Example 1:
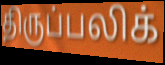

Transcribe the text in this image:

திருப்பலிக்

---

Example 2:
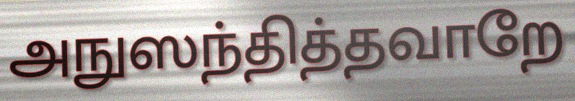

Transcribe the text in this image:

அநுஸந்தித்தவாறே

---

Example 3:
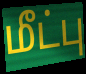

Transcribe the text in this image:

மீட்பு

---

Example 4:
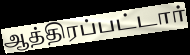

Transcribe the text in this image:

ஆத்திரப்பட்டார்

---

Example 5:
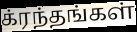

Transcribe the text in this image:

க்ரந்தங்கள்